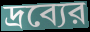
দ্রব্যের